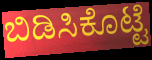
ಬಿಡಿಸಿಕೊಟ್ಟೆ